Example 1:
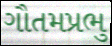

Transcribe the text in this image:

ગૌતમપ્રભુ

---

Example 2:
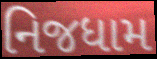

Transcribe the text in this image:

નિજધામ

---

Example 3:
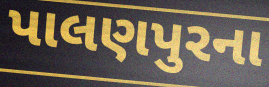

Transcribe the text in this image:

પાલણપુરના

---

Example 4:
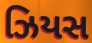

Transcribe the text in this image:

ઝિયસ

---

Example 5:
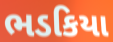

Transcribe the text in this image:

ભડકિયા